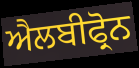
ਐਲਬੀਫ੍ਰੋਨ